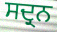
ਸਦ੍ਰਨ